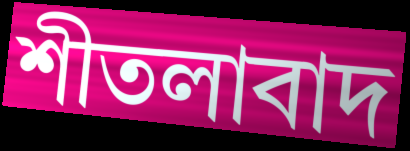
শীতলাবাদ